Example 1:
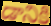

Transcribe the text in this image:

డానికి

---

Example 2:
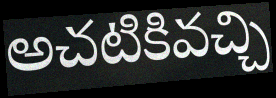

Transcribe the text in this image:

అచటికివచ్చి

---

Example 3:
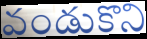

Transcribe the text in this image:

వండుకొని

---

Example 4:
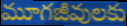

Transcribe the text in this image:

మూగజీవులకు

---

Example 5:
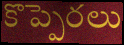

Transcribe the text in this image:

కొప్పెరలు